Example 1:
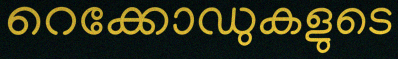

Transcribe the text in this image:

റെക്കോഡുകളുടെ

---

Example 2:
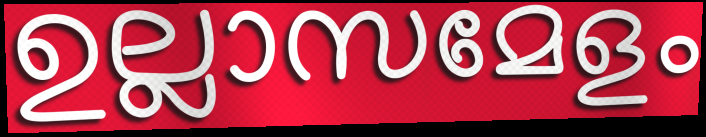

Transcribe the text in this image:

ഉല്ലാസമേളം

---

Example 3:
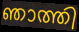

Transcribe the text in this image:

ഞാത്തി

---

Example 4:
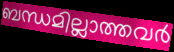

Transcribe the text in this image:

ബന്ധമില്ലാത്തവർ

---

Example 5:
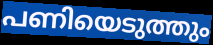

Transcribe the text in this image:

പണിയെടുത്തും